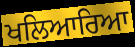
ਖਲਿਆਰਿਆ